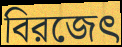
বিরজেৎ